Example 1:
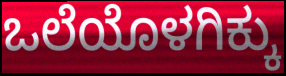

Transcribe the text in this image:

ಒಲೆಯೊಳಗಿಕ್ಕು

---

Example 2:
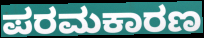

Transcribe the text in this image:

ಪರಮಕಾರಣ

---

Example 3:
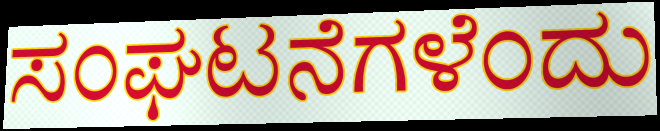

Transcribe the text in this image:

ಸಂಘಟನೆಗಳೆಂದು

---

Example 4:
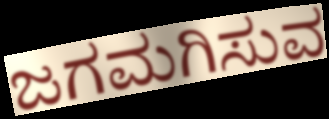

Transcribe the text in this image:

ಜಗಮಗಿಸುವ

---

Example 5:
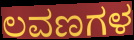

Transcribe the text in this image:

ಲವಣಗಳ